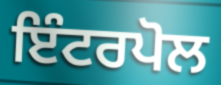
ਇੰਟਰਪੋਲ